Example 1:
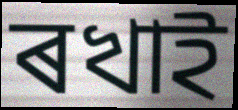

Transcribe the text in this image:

ৰখাই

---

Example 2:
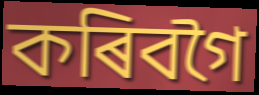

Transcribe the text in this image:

কৰিবগৈ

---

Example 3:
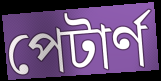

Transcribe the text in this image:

পেটাৰ্ণ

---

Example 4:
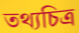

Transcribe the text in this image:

তথ্যচিত্ৰ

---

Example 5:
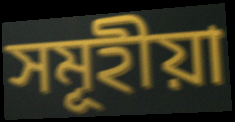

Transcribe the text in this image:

সমূহীয়া